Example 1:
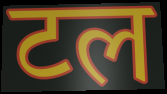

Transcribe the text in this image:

टल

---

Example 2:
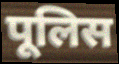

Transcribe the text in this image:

पूलिस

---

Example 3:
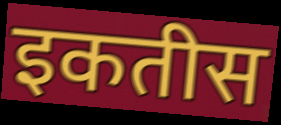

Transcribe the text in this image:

इकतीस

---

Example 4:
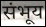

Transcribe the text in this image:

संभूय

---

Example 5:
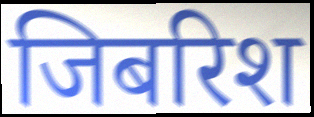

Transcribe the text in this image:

जिबरिश